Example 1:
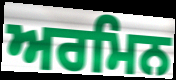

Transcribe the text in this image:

ਅਰਮਿਨ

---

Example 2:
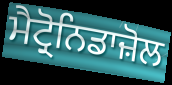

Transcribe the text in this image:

ਮੈਟ੍ਰੋਨਿਡਾਜ਼ੋਲ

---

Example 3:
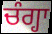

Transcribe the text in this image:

ਚੰਗ੍ਹਾ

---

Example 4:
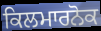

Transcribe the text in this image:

ਕਿਲਮਾਰਨੋਕ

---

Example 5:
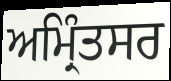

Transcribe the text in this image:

ਅਮ੍ਰਿੰਤਸਰ